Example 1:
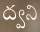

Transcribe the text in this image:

ద్వని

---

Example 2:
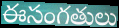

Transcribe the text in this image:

ఈసంగతులు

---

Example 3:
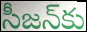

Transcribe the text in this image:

సీజన్‌కు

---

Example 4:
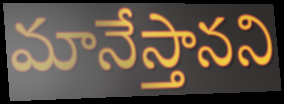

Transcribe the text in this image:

మానేస్తానని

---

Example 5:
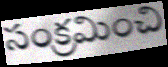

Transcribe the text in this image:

సంక్రమించి